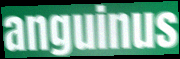
anguinus